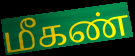
மீகண்